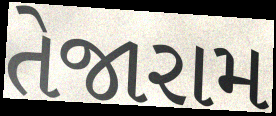
તેજારામ